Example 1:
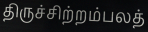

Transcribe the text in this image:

திருச்சிற்றம்பலத்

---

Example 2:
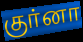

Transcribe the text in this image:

குர்னா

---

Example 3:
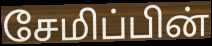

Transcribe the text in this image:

சேமிப்பின்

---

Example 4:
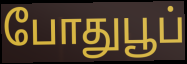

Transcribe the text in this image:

போதுபூப்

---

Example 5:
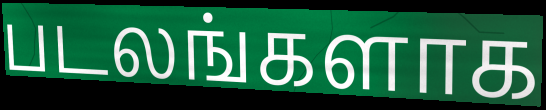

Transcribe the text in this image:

படலங்களாக